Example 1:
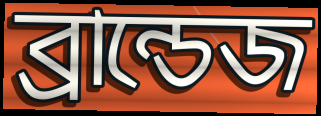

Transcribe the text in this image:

ব্রান্ডেজ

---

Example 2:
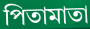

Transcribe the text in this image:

পিতামাতা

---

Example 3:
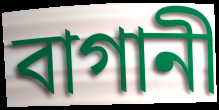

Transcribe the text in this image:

বাগানী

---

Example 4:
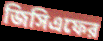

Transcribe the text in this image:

জিসিএফের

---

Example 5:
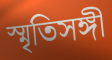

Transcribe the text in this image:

স্মৃতিসঙ্গী